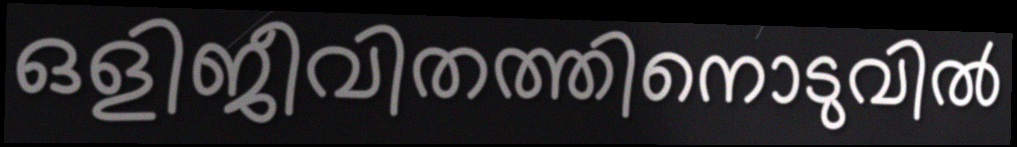
ഒളിജീവിതത്തിനൊടുവിൽ